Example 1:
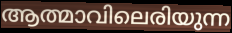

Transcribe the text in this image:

ആത്മാവിലെരിയുന്ന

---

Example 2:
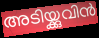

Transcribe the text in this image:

അടിയ്ക്കുവിൻ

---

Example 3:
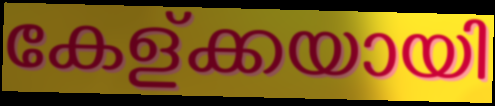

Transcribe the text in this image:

കേള്ക്കയായി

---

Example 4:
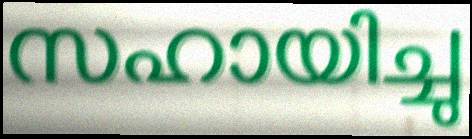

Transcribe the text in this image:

സഹായിച്ചു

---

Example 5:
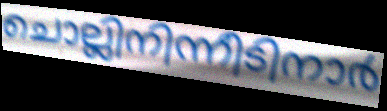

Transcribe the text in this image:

ചൊല്ലിനിന്നീടിനാർ